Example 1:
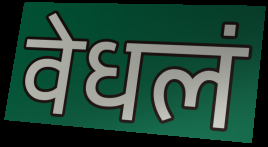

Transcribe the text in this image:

वेधलं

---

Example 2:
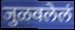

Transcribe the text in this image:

जुळवलेलं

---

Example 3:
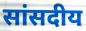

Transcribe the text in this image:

सांसदीय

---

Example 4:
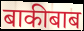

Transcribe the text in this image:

बाकीबाब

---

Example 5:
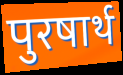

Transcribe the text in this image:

पुरषार्थ